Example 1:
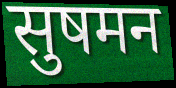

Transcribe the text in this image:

सुषमन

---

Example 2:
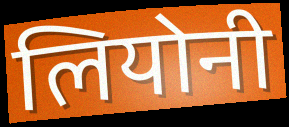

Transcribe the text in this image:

लियोनी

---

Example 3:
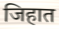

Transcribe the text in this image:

जिहात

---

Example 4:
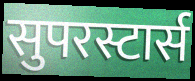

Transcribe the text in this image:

सुपरस्टार्स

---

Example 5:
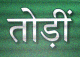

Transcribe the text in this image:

तोड़ीं